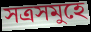
সত্ৰসমুহে